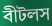
বীটলস